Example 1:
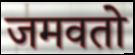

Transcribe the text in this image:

जमवतो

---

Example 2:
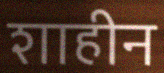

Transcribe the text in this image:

शाहीन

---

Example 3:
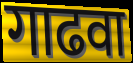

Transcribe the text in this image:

गाढवा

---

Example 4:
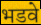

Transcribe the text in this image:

भडवे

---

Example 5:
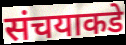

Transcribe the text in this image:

संचयाकडे